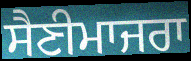
ਸੈਣੀਮਾਜਰਾ